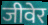
जीवेर